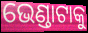
ଭେଣ୍ଡାଟାକୁ